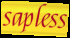
sapless